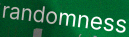
randomness